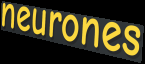
neurones